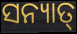
ସନ୍ୟାତ୍